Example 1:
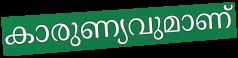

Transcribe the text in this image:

കാരുണ്യവുമാണ്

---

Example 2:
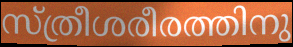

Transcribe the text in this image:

സ്ത്രീശരീരത്തിനു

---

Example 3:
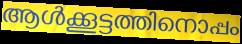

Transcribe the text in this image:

ആൾക്കൂട്ടത്തിനൊപ്പം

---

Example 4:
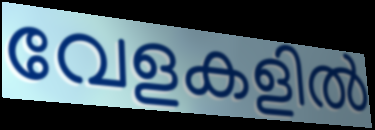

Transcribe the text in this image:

വേളകളിൽ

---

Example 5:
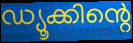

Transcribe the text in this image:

ഡ്യൂക്കിന്റെ